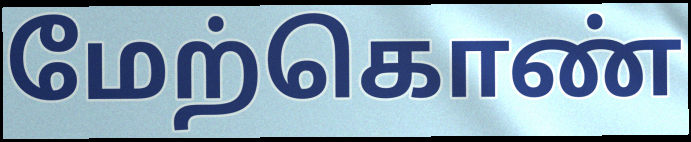
மேற்கொண்